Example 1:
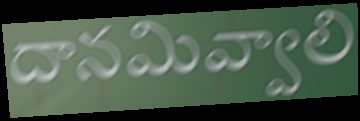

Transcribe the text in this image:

దానమివ్వాలి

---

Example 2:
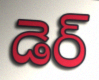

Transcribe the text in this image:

డెర్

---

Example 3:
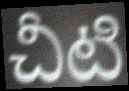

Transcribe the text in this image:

చీటి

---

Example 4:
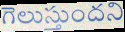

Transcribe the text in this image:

గెలుస్తుందని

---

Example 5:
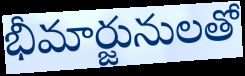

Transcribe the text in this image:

భీమార్జునులతో